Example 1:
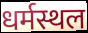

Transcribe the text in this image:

धर्मस्थल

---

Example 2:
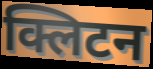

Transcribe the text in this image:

क्लिटन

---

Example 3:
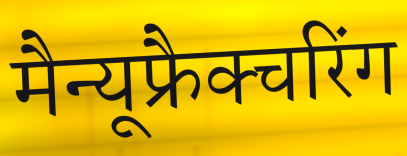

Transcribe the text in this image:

मैन्यूफ्रैक्चरिंग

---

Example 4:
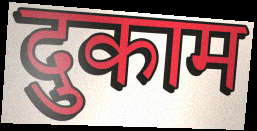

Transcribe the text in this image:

दुकाम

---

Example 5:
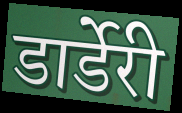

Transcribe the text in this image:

डार्डेरी